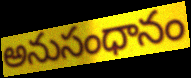
అనుసంధానం